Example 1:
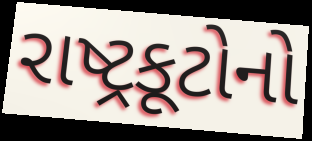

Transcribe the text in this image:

રાષ્ટ્રકૂટોનો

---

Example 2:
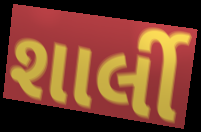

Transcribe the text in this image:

શાર્લી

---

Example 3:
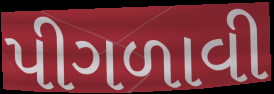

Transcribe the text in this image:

પીગળાવી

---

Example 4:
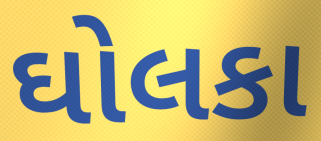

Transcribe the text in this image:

ઘોલકા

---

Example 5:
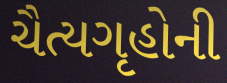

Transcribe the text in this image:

ચૈત્યગૃહોની